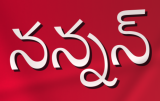
నన్నన్